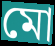
মো